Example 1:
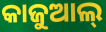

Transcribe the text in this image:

କାଜୁଆଲ୍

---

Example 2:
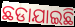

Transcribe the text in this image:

ଛଡାଯାଇଛି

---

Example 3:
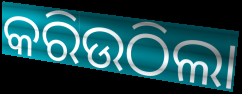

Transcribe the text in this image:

କରିଉଠିଲା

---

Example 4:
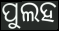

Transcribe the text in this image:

ପୁଲହ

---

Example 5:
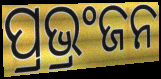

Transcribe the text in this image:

ପ୍ରଭ୍ରଂଜନ